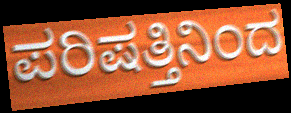
ಪರಿಷತ್ತಿನಿಂದ